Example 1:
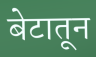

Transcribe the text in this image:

बेटातून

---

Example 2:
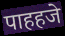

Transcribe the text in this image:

पाहहजे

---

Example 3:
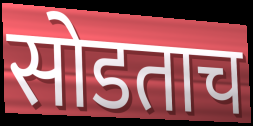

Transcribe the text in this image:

सोडताच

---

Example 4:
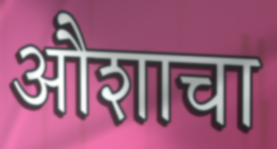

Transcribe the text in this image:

औशाचा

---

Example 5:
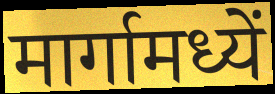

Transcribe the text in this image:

मार्गामध्यें